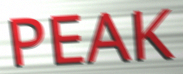
PEAK